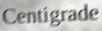
Centigrade